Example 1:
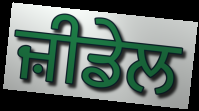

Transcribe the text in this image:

ਜ਼ੀਡੇਲ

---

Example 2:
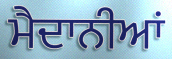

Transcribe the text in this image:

ਮੈਦਾਨੀਆਂ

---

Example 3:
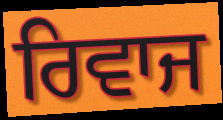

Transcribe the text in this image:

ਰਿਵਾਜ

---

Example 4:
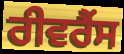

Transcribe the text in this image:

ਰੀਵਰੈਂਸ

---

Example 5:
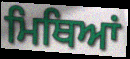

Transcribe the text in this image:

ਮਿਥਿਆਂ